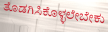
ತೊಡಗಿಸಿಕೊಳ್ಳಲೇಬೇಕು